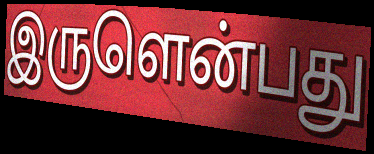
இருளென்பது